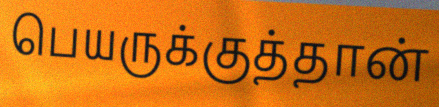
பெயருக்குத்தான்